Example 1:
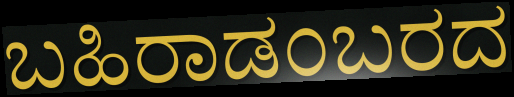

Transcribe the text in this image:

ಬಹಿರಾಡಂಬರದ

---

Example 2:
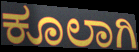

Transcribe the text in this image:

ಕೂಲಾಗಿ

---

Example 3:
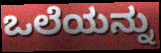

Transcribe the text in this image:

ಒಲೆಯನ್ನು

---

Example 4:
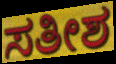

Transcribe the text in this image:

ಸತೀಶ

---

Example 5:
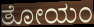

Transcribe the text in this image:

ತೋಯಂ